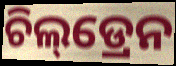
ଚିଲ୍‌ଡ୍ରେନ